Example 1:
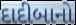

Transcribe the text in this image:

દાદીબાનો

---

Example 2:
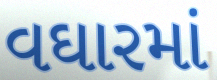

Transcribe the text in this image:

વઘારમાં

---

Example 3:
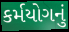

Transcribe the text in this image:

કર્મયોગનું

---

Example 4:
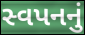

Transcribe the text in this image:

સ્વપનનું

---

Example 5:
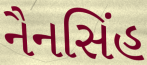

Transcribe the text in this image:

નૈનસિંહ